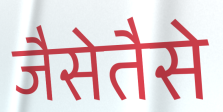
जैसेतैसे